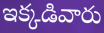
ఇక్కడివారు